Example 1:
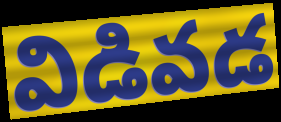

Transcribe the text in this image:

విడివడ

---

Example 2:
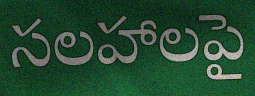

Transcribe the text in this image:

సలహాలపై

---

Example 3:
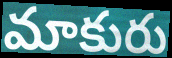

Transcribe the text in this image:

మాకురు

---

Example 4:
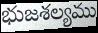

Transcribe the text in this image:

భుజశల్యము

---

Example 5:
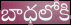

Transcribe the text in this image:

బాధలోకి